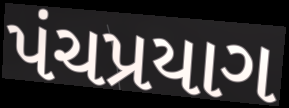
પંચપ્રયાગ